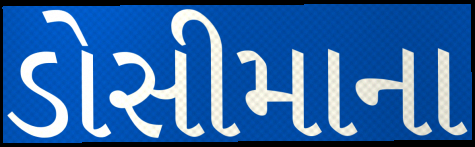
ડોસીમાના